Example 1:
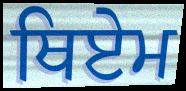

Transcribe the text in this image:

ਥਿਏਮ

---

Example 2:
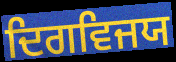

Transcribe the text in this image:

ਦਿਗਵਿਜਯ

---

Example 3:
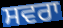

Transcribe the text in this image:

ਸਵਰਾ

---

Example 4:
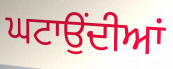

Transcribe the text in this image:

ਘਟਾਉਂਦੀਆਂ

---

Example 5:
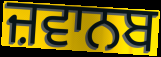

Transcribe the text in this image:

ਜ਼ਵਾਨਬ